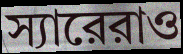
স্যারেরাও